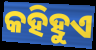
କହିହୁଏ